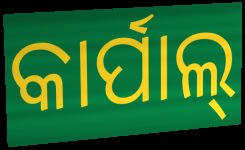
କାର୍ପାଲ୍